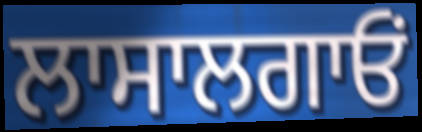
ਲਾਸਾਲਗਾਓਂ